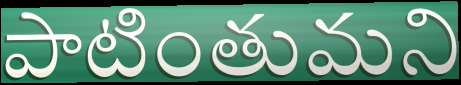
పాటింతుమని